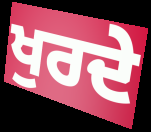
ਖੁਰਦੇ